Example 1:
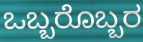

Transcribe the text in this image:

ಒಬ್ಬರೊಬ್ಬರ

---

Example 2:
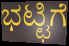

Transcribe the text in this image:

ಭಟ್ಟಿಗೆ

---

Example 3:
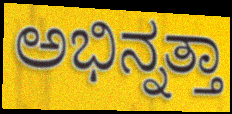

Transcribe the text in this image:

ಅಭಿನ್ನತ್ತಾ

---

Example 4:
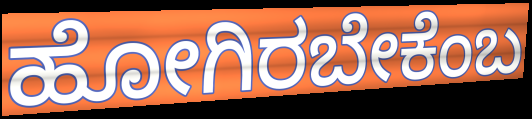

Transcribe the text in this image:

ಹೋಗಿರಬೇಕೆಂಬ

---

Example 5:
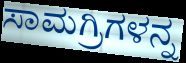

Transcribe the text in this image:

ಸಾಮಗ್ರಿಗಳನ್ನ